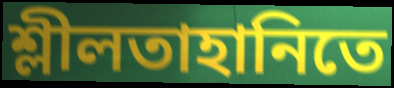
শ্লীলতাহানিতে